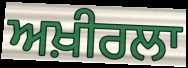
ਅਖ਼ੀਰਲਾ